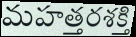
మహత్తరశక్తి